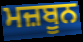
ਮਜ਼ਬੂਨ